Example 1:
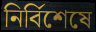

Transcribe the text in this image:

নির্বিশেষে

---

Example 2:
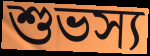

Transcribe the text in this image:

শুভস্য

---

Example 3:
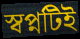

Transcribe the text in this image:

স্বপ্নটিই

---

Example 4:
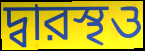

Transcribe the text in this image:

দ্বারস্থও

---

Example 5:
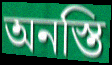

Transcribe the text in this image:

অনস্তি